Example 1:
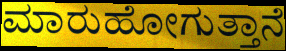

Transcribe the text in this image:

ಮಾರುಹೋಗುತ್ತಾನೆ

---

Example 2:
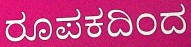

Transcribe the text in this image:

ರೂಪಕದಿಂದ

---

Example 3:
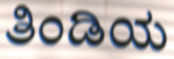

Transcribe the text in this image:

ತಿಂಡಿಯ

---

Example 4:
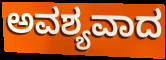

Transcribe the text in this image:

ಅವಶ್ಯವಾದ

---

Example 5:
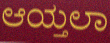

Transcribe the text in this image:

ಆಯ್ತಲಾ